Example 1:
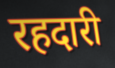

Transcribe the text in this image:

रहदारी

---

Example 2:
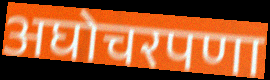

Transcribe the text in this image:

अघोचरपणा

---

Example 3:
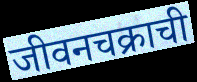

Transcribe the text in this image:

जीवनचक्राची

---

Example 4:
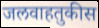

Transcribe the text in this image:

जलवाहतुकीस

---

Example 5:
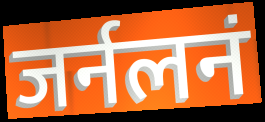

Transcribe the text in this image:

जर्नलनं